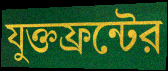
যুক্তফ্রন্টের